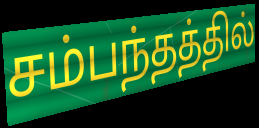
சம்பந்தத்தில்